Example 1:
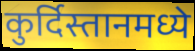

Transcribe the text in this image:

कुर्दिस्तानमध्ये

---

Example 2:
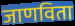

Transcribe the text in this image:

जाणविता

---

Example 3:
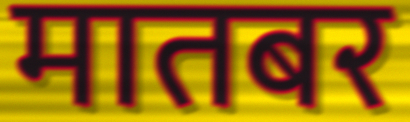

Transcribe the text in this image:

मातबर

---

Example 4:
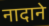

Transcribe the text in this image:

नादाने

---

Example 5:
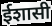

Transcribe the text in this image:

ईशासी